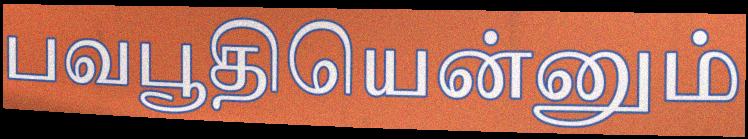
பவபூதியென்னும்